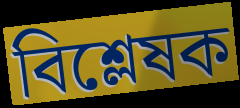
বিশ্লেষক